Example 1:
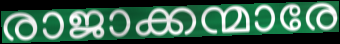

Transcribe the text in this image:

രാജാക്കന്മാരേ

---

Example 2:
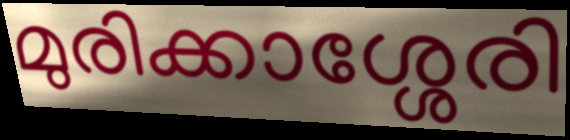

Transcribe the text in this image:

മുരിക്കാശ്ശേരി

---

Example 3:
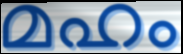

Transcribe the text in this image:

മഹം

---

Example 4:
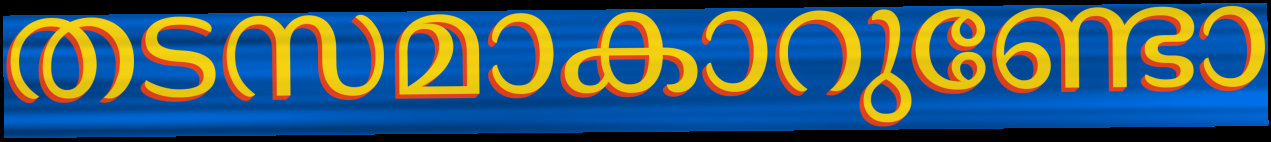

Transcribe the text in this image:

തടസമാകാറുണ്ടോ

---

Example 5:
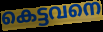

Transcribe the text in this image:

കെട്ടവനെ